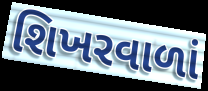
શિખરવાળાં